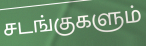
சடங்குகளும்